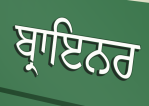
ਬ੍ਰਾਇਨਰ